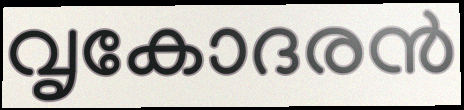
വൃകോദരൻ